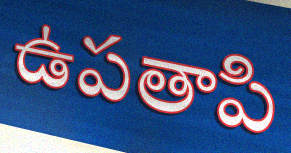
ఉపతాపి